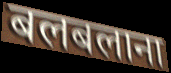
बलबलाना